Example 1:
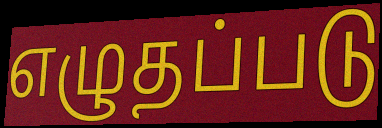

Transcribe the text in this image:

எழுதப்படு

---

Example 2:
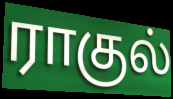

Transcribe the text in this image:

ராகுல்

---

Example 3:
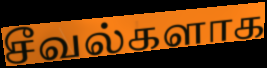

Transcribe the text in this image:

சீவல்களாக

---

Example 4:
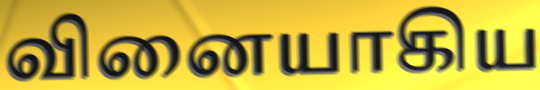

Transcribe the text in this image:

வினையாகிய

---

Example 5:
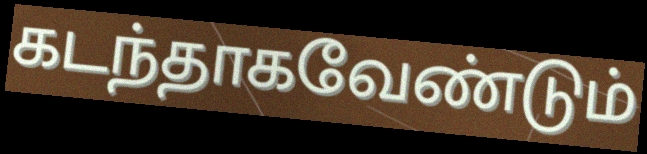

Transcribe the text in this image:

கடந்தாகவேண்டும்